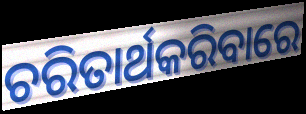
ଚରିତାର୍ଥକରିବାରେ